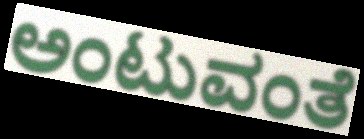
ಅಂಟುವಂತೆ